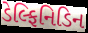
ડેલ્ફિનિડિન